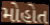
મોહોત